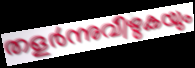
തളർന്നുവീഴുകയും